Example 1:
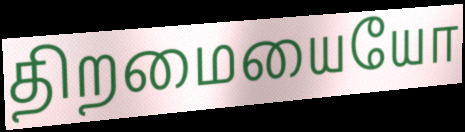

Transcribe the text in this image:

திறமையையோ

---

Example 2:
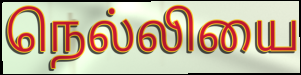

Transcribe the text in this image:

நெல்லியை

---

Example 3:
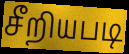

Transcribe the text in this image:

சீறியபடி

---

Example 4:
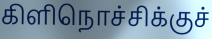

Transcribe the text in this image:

கிளிநொச்சிக்குச்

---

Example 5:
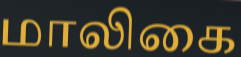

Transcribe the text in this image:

மாலிகை